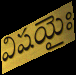
విషయైః